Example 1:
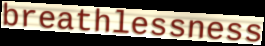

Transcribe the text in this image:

breathlessness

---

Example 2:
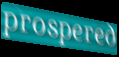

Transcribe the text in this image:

prospered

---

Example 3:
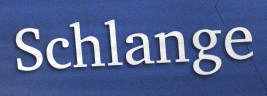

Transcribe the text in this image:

Schlange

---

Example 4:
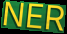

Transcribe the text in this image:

NER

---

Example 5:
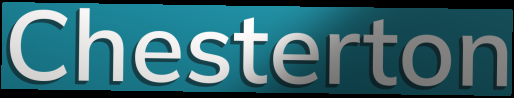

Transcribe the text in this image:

Chesterton